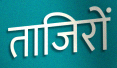
ताजिरों